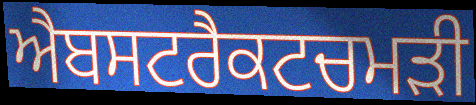
ਐਬਸਟਰੈਕਟਚਮੜੀ